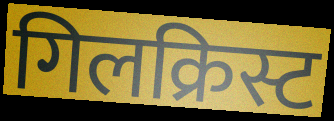
गिलक्रिस्ट